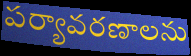
పర్యావరణాలను